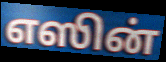
எஸின்